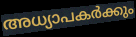
അധ്യാപകർക്കും